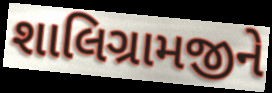
શાલિગ્રામજીને